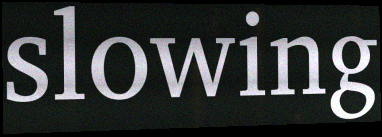
slowing